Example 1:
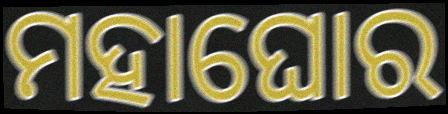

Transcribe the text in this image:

ମହାଘୋର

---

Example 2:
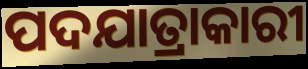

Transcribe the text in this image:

ପଦଯାତ୍ରାକାରୀ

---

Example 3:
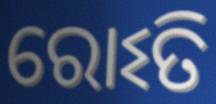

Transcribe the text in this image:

ରୋଽତି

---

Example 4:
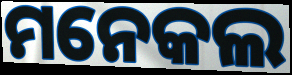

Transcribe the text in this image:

ମନେକଲ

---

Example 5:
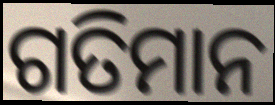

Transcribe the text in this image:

ଗତିମାନ